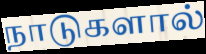
நாடுகளால்